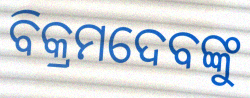
ବିକ୍ରମଦେବଙ୍କୁ